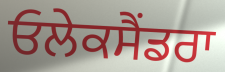
ਓਲੇਕਸੈਂਡਰਾ